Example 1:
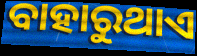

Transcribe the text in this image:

ବାହାରୁଥାଏ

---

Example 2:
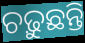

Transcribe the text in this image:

ଚଢ଼ୁଛନ୍ତି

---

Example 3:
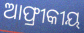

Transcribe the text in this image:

ଆଫ୍ରୀକୀୟ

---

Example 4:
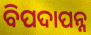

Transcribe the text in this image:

ବିପଦାପନ୍ନ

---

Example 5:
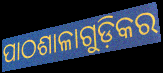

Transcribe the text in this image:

ପାଠଶାଳାଗୁଡ଼ିକର